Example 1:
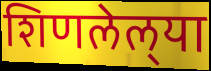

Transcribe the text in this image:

शिणलेल्या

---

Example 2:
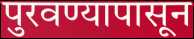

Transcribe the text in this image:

पुरवण्यापासून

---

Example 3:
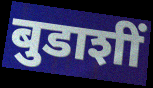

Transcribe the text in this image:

बुडाशीं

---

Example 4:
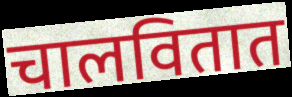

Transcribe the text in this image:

चालवितात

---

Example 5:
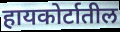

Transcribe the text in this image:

हायकोर्टातील